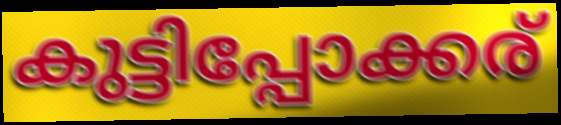
കുട്ടിപ്പോക്കര്